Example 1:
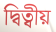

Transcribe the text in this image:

দ্বিত্বীয়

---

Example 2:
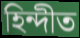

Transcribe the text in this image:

হিন্দীত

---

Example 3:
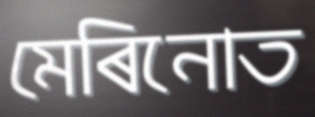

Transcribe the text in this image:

মেৰিনোত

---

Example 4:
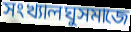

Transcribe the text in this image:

সংখ্যালঘুসমাজে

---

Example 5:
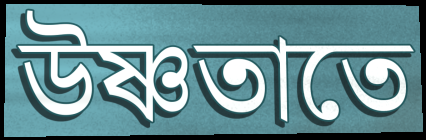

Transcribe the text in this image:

উষ্ণতাতে